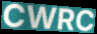
CWRC